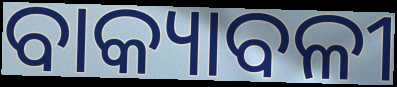
ବାକ୍ୟାବଳୀ